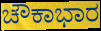
ಚೌಕಾಭಾರ